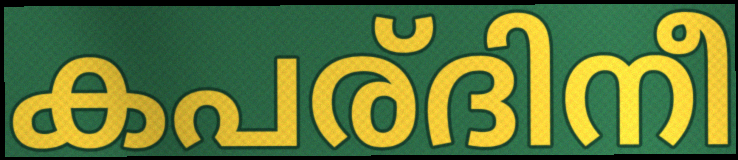
കപര്ദിനീ